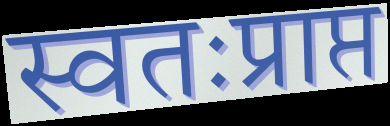
स्वतःप्राप्त